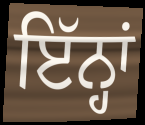
ਇੱਨ੍ਹਾਂ